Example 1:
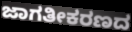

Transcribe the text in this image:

ಜಾಗತೀಕರಣದ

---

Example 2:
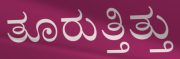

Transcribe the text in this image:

ತೂರುತ್ತಿತ್ತು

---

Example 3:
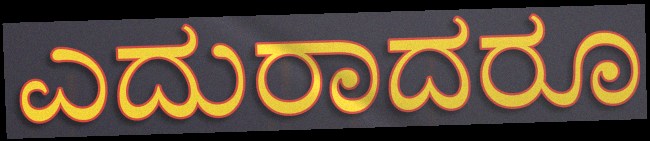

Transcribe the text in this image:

ಎದುರಾದರೂ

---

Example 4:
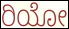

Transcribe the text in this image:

ರಿಯೋ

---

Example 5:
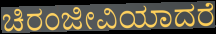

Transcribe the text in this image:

ಚಿರಂಜೀವಿಯಾದರೆ